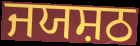
ਜਯਸ਼ਠ